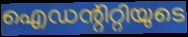
ഐഡന്റിറ്റിയുടെ